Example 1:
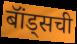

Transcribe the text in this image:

बॉंड्सची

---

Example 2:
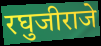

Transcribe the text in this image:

रघुजीराजे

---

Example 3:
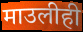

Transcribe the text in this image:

माउलीही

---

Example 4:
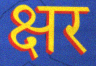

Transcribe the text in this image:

क्षर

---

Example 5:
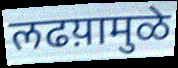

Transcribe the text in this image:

लढय़ामुळे